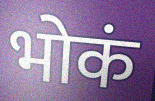
भोकं